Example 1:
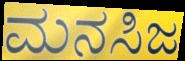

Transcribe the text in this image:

ಮನಸಿಜ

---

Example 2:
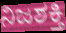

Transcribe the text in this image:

ನಿಜಶಕ್ತಿ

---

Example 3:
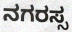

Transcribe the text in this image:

ನಗರಸ್ಸ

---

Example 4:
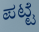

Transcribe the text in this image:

ಪಟ್ಟೆ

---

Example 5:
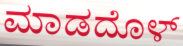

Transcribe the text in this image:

ಮಾಡದೊಳ್